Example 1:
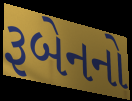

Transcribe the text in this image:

રૂબેનનો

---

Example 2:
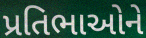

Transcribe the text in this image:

પ્રતિભાઓને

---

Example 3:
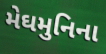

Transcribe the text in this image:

મેઘમુનિના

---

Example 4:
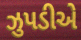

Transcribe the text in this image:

ઝુપડીએ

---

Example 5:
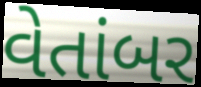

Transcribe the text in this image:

વેતાંબર